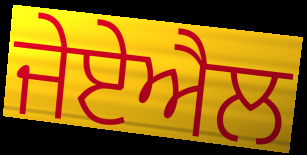
ਜੇਏਐਲ